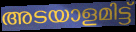
അടയാളമിട്ട്